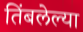
तिंबलेल्या